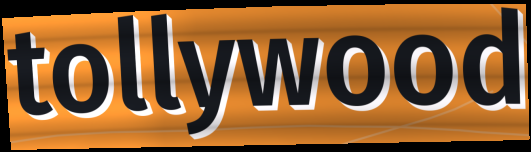
tollywood